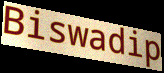
Biswadip